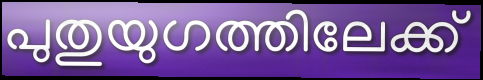
പുതുയുഗത്തിലേക്ക്